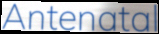
Antenatal